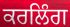
ਕਰਲਿੰਗ